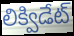
లిక్విడేట్